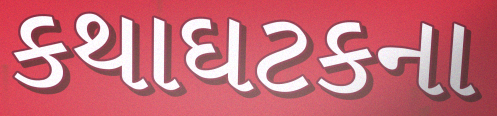
કથાઘટકના